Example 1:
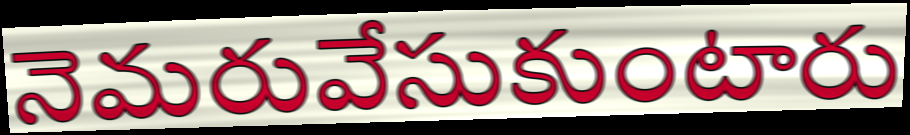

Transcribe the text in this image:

నెమరువేసుకుంటారు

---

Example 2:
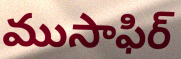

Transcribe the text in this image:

ముసాఫిర్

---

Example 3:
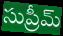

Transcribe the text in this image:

సుప్రీమ్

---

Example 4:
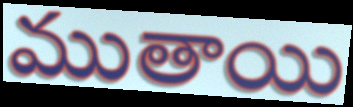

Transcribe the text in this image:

ముతాయి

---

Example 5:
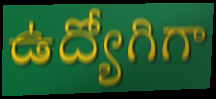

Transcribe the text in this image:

ఉద్యోగిగా